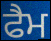
ਫੈਮ